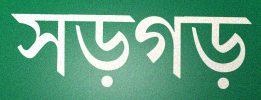
সড়গড়